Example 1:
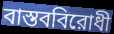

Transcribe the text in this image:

বাস্তববিরোধী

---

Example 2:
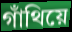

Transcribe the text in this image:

গাঁথিয়ে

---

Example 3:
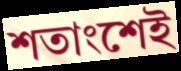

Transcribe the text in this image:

শতাংশেই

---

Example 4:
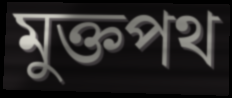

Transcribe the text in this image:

মুক্তপথ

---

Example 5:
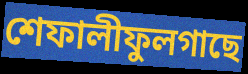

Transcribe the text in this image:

শেফালীফুলগাছে